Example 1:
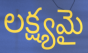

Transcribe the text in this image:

లక్ష్యమై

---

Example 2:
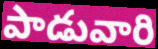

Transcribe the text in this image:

పాడువారి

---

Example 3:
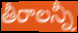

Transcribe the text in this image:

తీరాలన్నీ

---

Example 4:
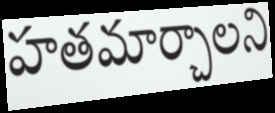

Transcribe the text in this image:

హతమార్చాలని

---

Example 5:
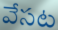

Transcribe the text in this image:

వేసట